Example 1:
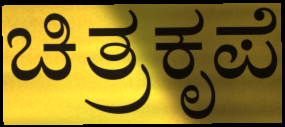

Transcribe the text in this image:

ಚಿತ್ರಕೃಪೆ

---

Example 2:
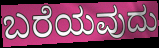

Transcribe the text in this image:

ಬರೆಯವುದು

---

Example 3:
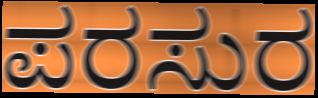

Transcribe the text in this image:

ಪರಸುರ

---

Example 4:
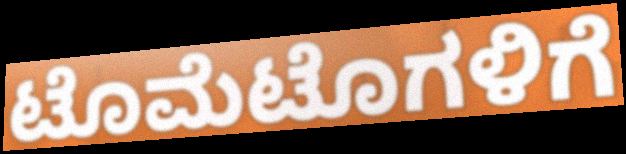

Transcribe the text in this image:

ಟೊಮೆಟೊಗಳಿಗೆ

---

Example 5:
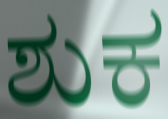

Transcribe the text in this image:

ಶುಕ